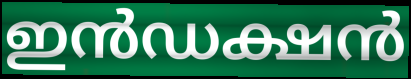
ഇൻഡക്ഷൻ